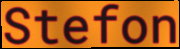
Stefon